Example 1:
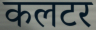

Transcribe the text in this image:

कलटर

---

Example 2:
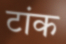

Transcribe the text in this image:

टांक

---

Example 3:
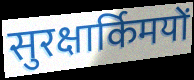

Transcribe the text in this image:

सुरक्षार्किमयों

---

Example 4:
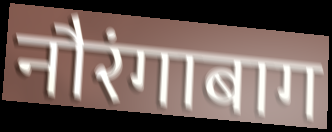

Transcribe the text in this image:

नौरंगाबाग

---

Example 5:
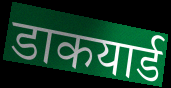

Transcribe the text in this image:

डाकयार्ड